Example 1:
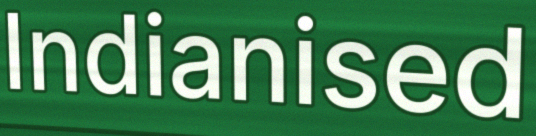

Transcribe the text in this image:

Indianised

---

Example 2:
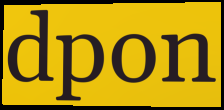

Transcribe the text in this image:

dpon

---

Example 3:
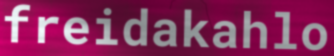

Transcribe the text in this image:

freidakahlo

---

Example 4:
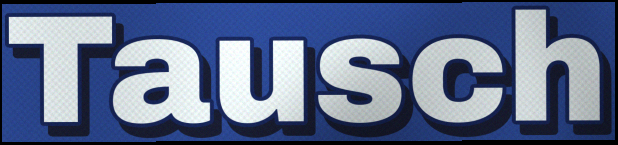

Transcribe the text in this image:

Tausch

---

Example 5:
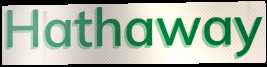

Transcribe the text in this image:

Hathaway